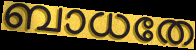
ബാധതേ